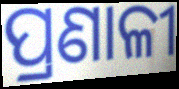
ପ୍ରଣାଳୀ